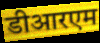
डीआरएम